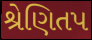
શ્રેણિતપ